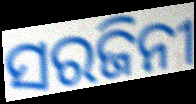
ସରଜିନୀ